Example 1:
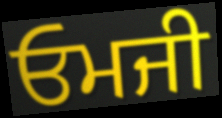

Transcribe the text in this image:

ਓਮਜੀ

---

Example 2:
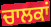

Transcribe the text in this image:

ਚਾਲਕਾਂ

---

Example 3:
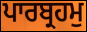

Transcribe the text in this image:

ਪਾਰਬ੍ਰਹਮੁ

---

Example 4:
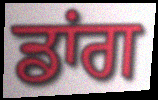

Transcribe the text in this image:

ਡਾਂਗ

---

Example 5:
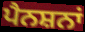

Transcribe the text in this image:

ਪੈਨਸ਼ਨਾਂ